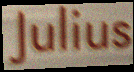
Julius